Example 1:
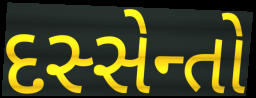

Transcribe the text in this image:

દસ્સેન્તો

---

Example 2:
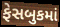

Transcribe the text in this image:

ફેસબુકમાં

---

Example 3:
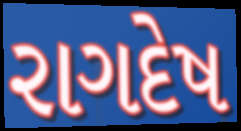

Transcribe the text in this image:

રાગદેષ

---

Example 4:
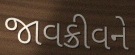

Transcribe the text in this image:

જાવક્રીવને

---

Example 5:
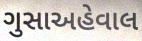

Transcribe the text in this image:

ગુસાઅહેવાલ